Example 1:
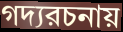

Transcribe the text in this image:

গদ্যরচনায়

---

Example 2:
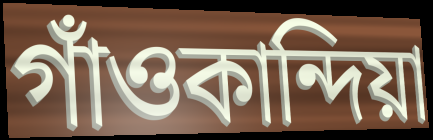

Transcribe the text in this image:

গাঁওকান্দিয়া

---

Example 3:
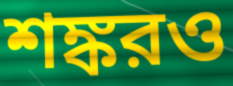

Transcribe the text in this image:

শঙ্করও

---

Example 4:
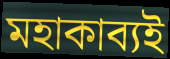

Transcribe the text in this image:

মহাকাব্যই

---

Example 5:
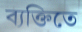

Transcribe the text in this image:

ব্যক্তিতে